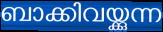
ബാക്കിവയ്ക്കുന്ന